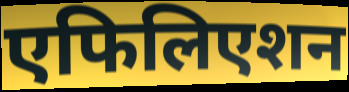
एफिलिएशन